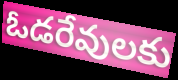
ఓడరేవులకు